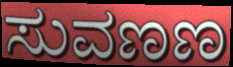
ಸುವಣಣ